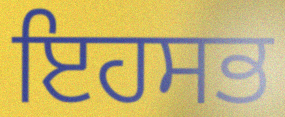
ਇਹਸਭ